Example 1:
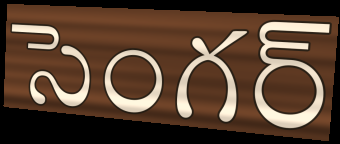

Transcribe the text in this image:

సెంగర్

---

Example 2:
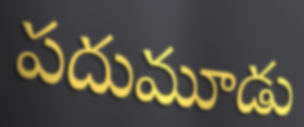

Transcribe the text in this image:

పదుమూడు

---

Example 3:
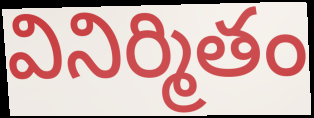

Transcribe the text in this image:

వినిర్మితం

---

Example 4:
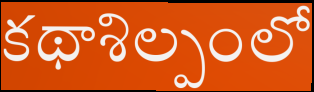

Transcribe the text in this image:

కథాశిల్పంలో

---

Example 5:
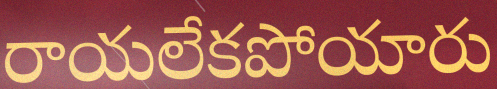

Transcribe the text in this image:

రాయలేకపోయారు